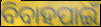
ବିବାହପାଇଁ